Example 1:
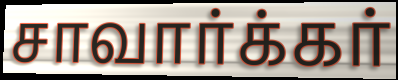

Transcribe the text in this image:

சாவார்க்கர்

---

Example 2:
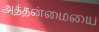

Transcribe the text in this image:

அத்தன்மையை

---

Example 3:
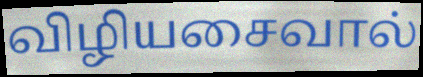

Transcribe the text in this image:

விழியசைவால்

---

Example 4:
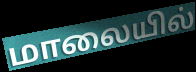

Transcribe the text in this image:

மாலையில்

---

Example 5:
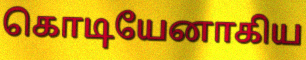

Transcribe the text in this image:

கொடியேனாகிய